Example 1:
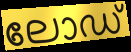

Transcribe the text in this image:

ലോഡ്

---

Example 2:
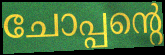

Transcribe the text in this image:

ചോപ്പന്റെ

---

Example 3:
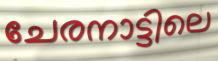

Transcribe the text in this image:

ചേരനാട്ടിലെ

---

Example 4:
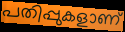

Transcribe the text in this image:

പതിപ്പുകളാണ്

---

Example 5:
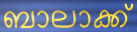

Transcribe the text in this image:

ബാലാക്ക്